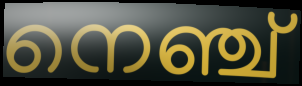
നെഞ്ച്